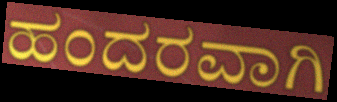
ಹಂದರವಾಗಿ